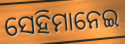
ସେହିମାନେଇ